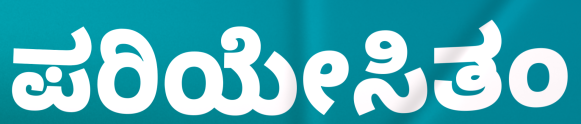
ಪರಿಯೇಸಿತಂ